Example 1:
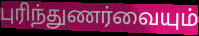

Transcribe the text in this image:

புரிந்துணர்வையும்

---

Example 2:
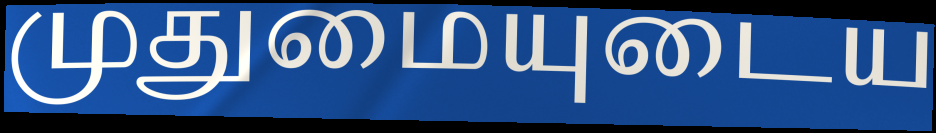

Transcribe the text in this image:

முதுமையுடைய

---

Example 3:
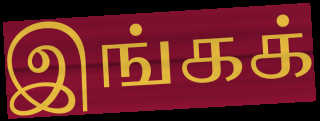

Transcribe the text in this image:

இங்கக்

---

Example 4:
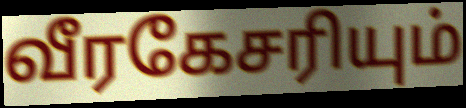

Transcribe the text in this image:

வீரகேசரியும்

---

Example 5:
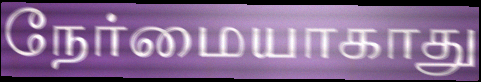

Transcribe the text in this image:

நேர்மையாகாது